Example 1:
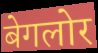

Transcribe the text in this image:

बेगलोर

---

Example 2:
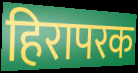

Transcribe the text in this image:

हिरापरक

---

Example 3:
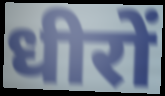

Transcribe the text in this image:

धीरों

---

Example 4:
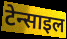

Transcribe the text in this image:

टेन्साइल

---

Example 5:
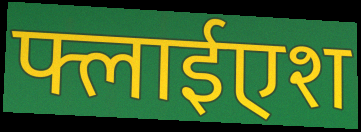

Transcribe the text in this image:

फ्लाईएश